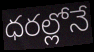
ధరల్లోనే